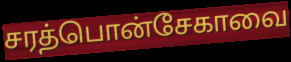
சரத்பொன்சேகாவை